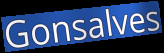
Gonsalves